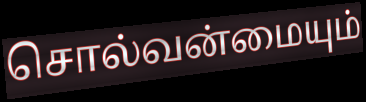
சொல்வன்மையும்